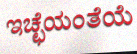
ಇಚ್ಛೆಯಂತೆಯೆ